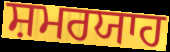
ਸ਼ਮਰਯਾਹ